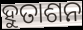
ହୁତାଶନ